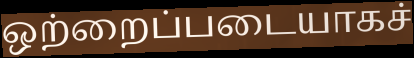
ஒற்றைப்படையாகச்